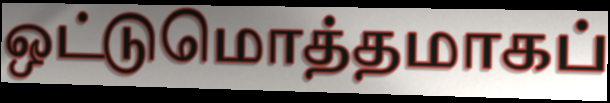
ஒட்டுமொத்தமாகப்